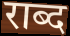
राब्द